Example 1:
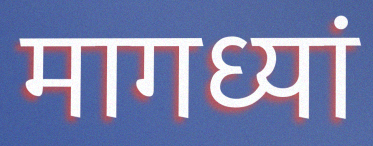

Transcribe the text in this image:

मागध्यां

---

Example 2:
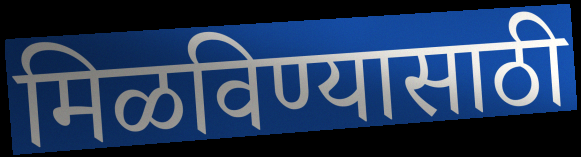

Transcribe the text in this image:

मिळविण्यासाठी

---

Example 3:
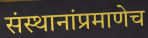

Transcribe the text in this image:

संस्थानांप्रमाणेच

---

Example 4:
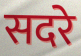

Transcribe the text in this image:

सदरे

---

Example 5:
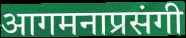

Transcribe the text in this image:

आगमनाप्रसंगी